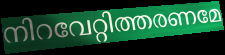
നിറവേറ്റിത്തരണമേ